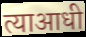
त्याआधी